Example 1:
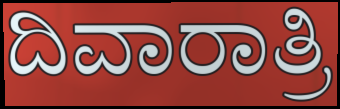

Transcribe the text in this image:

ದಿವಾರಾತ್ರಿ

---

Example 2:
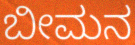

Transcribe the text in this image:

ಬೀಮನ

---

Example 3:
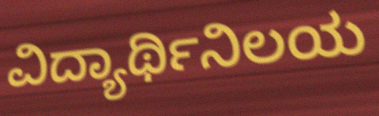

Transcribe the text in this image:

ವಿದ್ಯಾರ್ಥಿನಿಲಯ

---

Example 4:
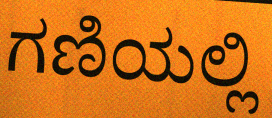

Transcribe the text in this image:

ಗಣಿಯಲ್ಲಿ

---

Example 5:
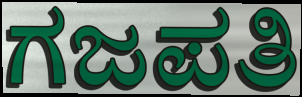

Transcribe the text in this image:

ಗಜಪತಿ